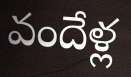
వందేళ్ల